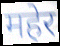
महेर